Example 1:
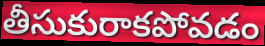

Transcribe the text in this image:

తీసుకురాకపోవడం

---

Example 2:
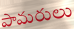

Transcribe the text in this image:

పామరులు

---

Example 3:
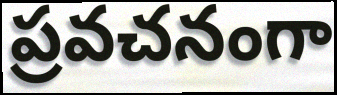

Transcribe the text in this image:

ప్రవచనంగా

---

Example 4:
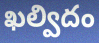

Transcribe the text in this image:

ఖల్విదం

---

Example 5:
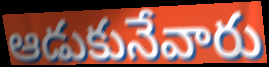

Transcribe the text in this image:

ఆడుకునేవారు